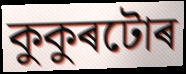
কুকুৰটোৰ